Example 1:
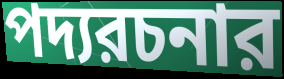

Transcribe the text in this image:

পদ্যরচনার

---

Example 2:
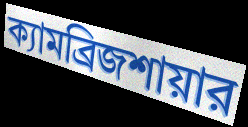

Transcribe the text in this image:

ক্যামব্রিজশায়ার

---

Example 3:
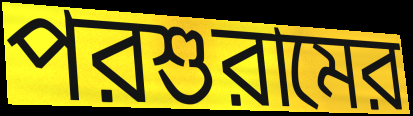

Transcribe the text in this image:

পরশুরামের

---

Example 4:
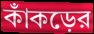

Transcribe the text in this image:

কাঁকড়ের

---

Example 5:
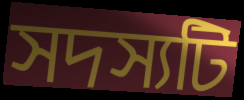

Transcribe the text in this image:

সদস্যটি